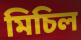
মিচিল